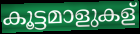
കൂട്ടമാളുകള്